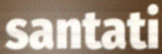
santati